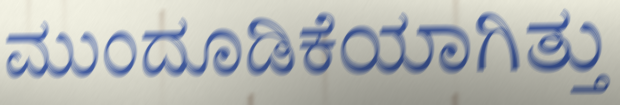
ಮುಂದೂಡಿಕೆಯಾಗಿತ್ತು